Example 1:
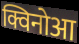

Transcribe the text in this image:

क्विनोआ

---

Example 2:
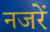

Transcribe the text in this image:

नजरें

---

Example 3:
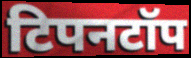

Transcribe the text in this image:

टिपनटॉप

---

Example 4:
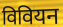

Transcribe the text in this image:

विवियन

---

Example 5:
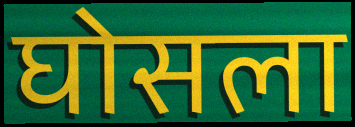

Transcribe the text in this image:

घोसला